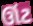
ઊંટ